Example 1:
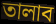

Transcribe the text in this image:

তালাব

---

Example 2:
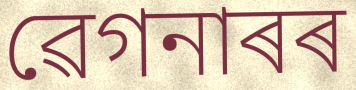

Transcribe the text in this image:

ৱেগনাৰৰ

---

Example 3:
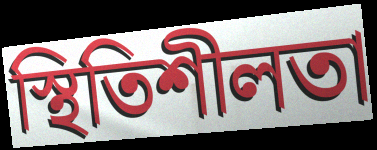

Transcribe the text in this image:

স্থিতিশীলতা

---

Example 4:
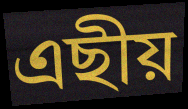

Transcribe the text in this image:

এছীয়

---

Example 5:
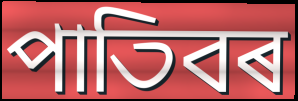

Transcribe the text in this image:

পাতিবৰ